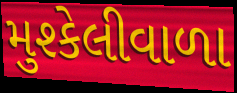
મુશ્કેલીવાળા